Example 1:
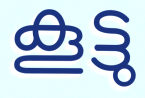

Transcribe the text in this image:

കൂട്ടു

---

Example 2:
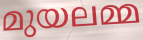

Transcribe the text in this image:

മുയലമ്മ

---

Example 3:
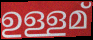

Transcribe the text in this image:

ഉള്ളമ്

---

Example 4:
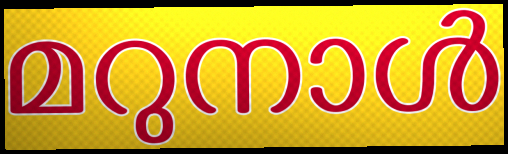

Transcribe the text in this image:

മറുനാൾ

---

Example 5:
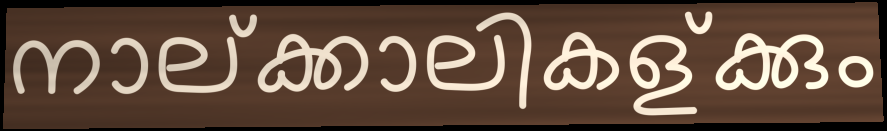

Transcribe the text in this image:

നാല്ക്കാലികള്ക്കും